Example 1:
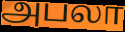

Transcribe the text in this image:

அபலா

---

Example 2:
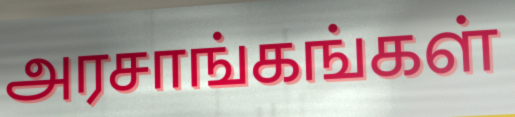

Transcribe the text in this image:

அரசாங்கங்கள்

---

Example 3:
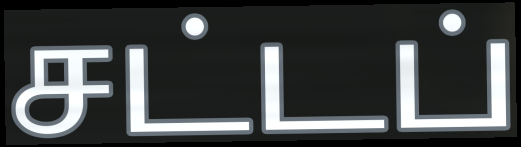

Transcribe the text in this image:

சட்டப்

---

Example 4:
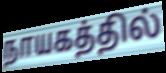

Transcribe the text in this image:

நாயகத்தில்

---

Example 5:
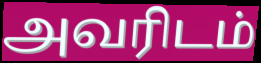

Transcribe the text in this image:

அவரிடம்